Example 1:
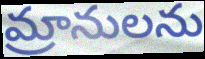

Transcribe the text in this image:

మ్రానులను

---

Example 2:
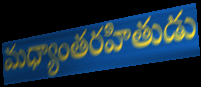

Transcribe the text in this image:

మధ్యాంతరహితుడు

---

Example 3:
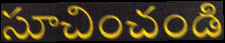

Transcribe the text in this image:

సూచించండి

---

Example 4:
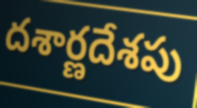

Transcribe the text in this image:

దశార్ణదేశపు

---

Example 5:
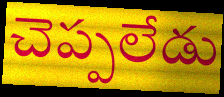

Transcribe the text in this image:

చెప్పలేడు